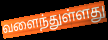
வளைந்துள்ளது